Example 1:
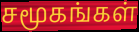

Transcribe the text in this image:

சமூகங்கள்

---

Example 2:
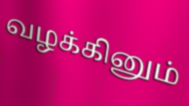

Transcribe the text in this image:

வழக்கினும்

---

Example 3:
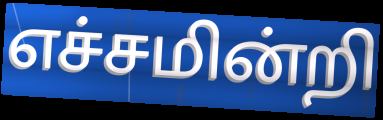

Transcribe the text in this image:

எச்சமின்றி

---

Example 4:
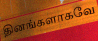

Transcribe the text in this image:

தினங்களாகவே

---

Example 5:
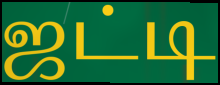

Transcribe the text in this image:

ஜட்டி